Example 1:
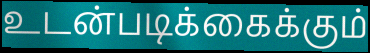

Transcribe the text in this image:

உடன்படிக்கைக்கும்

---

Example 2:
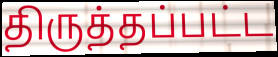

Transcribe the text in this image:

திருத்தப்பட்ட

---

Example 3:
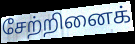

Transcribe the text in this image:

சேற்றினைக்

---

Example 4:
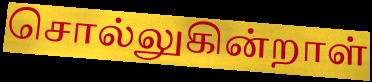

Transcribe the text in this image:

சொல்லுகின்றாள்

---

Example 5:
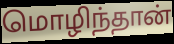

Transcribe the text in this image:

மொழிந்தான்